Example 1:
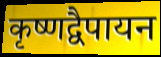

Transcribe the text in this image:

कृष्णद्वैपायन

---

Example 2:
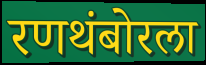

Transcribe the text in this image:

रणथंबोरला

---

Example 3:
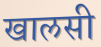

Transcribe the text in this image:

खालसी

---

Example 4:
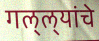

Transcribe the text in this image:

गल्ल्यांचे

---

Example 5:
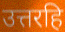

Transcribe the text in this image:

उत्तरहि